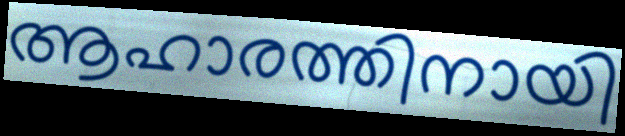
ആഹാരത്തിനായി